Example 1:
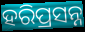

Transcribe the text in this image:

ହରିପ୍ରସନ୍ନ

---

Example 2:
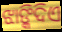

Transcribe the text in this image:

ଝାଙ୍କିଦିଏ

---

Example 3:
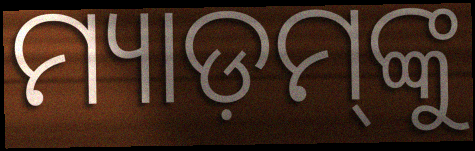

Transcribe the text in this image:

ମ୍ୟାଡ଼ମ୍‌ଙ୍କୁ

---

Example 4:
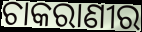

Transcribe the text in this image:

ଚାକରାଣୀର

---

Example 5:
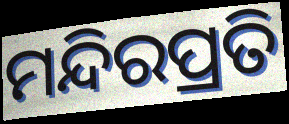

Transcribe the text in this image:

ମନ୍ଦିରପ୍ରତି